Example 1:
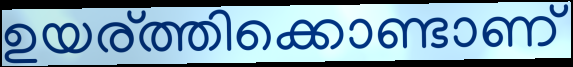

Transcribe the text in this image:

ഉയര്ത്തിക്കൊണ്ടാണ്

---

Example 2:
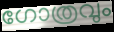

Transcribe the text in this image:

ഗോത്രവും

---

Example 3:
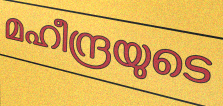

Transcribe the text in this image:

മഹീന്ദ്രയുടെ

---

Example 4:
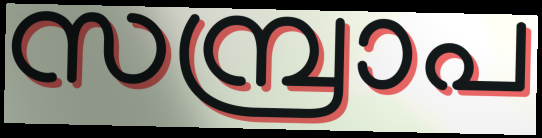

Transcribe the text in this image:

സമ്പ്രാപ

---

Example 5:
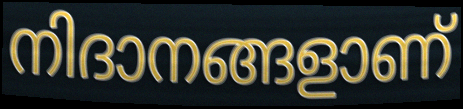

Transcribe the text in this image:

നിദാനങ്ങളാണ്